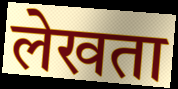
लेखता